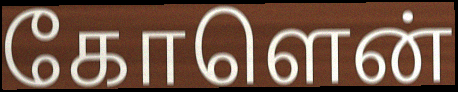
கோளென்